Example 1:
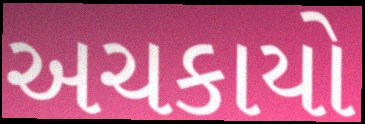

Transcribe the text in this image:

અચકાયો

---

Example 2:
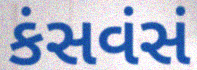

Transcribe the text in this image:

કંસવંસં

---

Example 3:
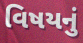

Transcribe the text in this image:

વિષયનું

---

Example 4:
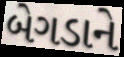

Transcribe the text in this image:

બેગડાને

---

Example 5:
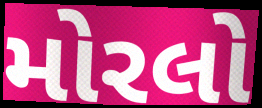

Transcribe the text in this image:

મોરલો